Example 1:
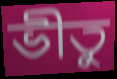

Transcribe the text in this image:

ভীতু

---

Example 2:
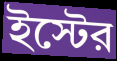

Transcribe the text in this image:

ইস্টের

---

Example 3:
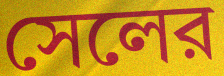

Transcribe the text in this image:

সেলের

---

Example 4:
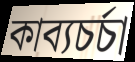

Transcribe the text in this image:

কাব্যচর্চা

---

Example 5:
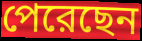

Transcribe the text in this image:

পেরেছেন